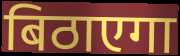
बिठाएगा